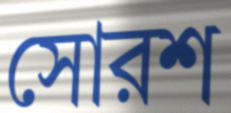
সোরশ